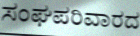
ಸಂಘಪರಿವಾರದ